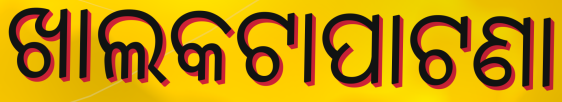
ଖାଲକଟାପାଟଣା